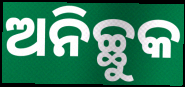
ଅନିଚ୍ଛୁକ